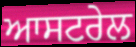
ਆਸਟਰੇਲ